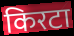
किरटा